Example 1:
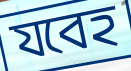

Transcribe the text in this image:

যবেহ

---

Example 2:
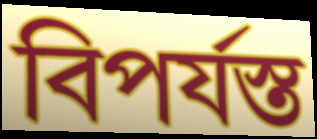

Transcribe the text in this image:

বিপর্যস্ত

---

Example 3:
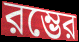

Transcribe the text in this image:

রম্ভের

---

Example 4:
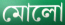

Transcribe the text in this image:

মোলো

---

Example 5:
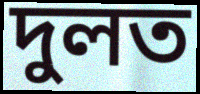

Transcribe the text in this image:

দুলত